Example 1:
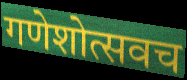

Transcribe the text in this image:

गणेशोत्सवच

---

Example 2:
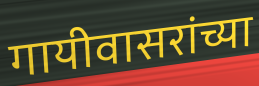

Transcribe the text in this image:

गायीवासरांच्या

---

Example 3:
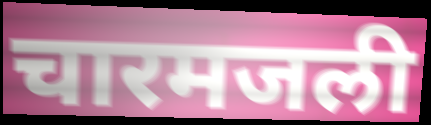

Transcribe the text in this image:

चारमजली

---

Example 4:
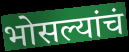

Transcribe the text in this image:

भोसल्यांचं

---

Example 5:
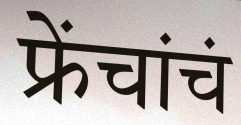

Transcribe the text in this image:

फ्रेंचांचं